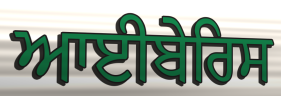
ਆਈਬੇਰਿਸ